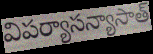
విపర్యాసన్యాసాత్